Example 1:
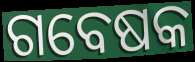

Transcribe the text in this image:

ଗବେଷକ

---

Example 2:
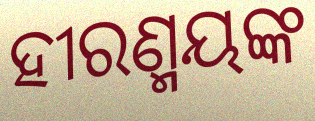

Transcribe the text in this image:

ହୀରଣ୍ମୟଙ୍କ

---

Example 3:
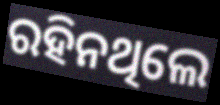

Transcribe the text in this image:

ରହିନଥିଲେ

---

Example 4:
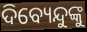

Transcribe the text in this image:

ଦିବ୍ୟେନ୍ଦୁଙ୍କୁ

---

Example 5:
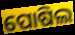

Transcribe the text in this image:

ପୋଷିଲ